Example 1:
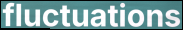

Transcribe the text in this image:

fluctuations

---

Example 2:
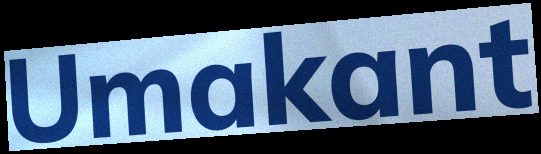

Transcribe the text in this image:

Umakant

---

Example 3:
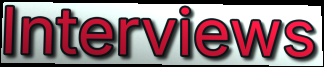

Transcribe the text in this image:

Interviews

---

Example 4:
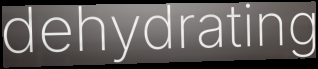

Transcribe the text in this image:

dehydrating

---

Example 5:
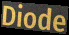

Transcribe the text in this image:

Diode